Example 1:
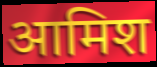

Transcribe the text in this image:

आमिश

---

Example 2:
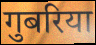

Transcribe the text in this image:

गुबरिया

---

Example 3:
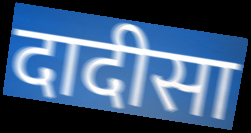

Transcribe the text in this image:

दादीसा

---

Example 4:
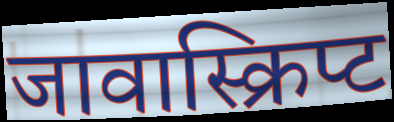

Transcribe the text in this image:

जावास्क्रिप्ट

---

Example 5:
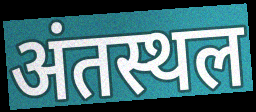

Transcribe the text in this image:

अंतस्थल